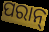
ପରାନ୍